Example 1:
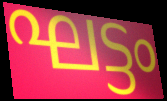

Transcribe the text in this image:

ഘട്ടം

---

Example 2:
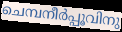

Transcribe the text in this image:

ചെമ്പനീർപ്പൂവിനു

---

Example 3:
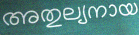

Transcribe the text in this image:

അതുല്യനായ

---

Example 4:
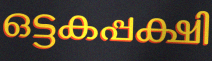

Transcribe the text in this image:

ഒട്ടകപ്പക്ഷി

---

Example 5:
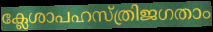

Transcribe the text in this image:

ക്ലേശാപഹസ്ത്രിജഗതാം